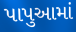
પાપુઆમાં